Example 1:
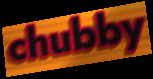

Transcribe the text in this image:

chubby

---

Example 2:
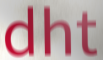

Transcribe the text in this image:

dht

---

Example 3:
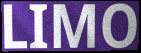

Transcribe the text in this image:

LIMO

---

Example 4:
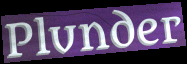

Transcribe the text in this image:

Plunder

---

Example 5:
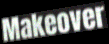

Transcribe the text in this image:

Makeover